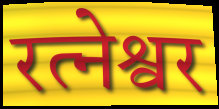
रत्नेश्वर